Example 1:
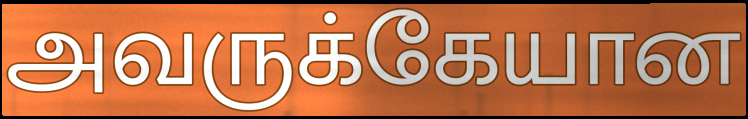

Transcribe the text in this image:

அவருக்கேயான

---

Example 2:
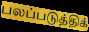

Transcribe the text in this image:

பலப்படுத்திக்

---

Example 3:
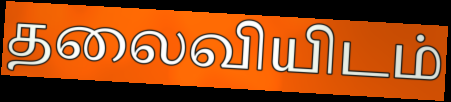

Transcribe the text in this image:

தலைவியிடம்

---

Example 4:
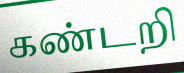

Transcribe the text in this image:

கண்டறி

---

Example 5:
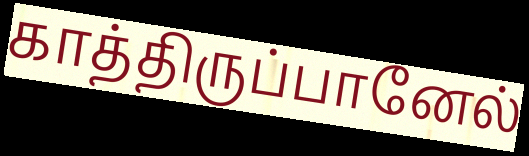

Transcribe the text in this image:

காத்திருப்பானேல்